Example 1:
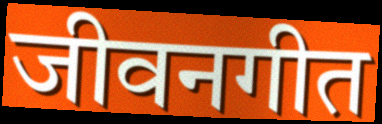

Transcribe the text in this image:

जीवनगीत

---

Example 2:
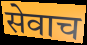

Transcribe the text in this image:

सेवाच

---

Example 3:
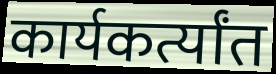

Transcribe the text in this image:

कार्यकर्त्यांत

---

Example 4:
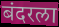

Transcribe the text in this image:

बंदरला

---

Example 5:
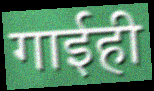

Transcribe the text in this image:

गाईही